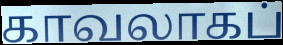
காவலாகப்